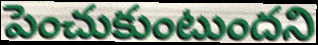
పెంచుకుంటుందని